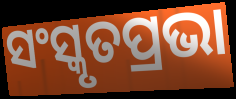
ସଂସ୍କୃତପ୍ରଭା